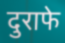
दुराफे